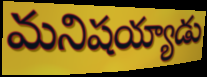
మనిషయ్యాడు